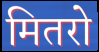
मितरो